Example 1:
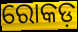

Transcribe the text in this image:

ରୋକଡ଼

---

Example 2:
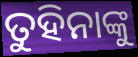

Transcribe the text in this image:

ତୁହିନାଙ୍କୁ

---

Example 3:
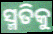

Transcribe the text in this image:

ସ୍ମତିକୁ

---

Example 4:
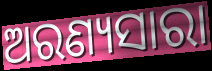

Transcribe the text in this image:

ଅରଣ୍ୟସାରା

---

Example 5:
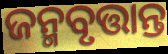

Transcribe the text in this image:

ଜନ୍ମବୃତ୍ତାନ୍ତ